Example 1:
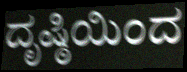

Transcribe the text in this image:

ದೃಷ್ಠಿಯಿಂದ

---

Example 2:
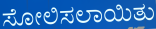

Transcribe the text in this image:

ಸೋಲಿಸಲಾಯಿತು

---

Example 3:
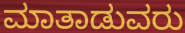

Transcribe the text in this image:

ಮಾತಾಡುವರು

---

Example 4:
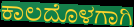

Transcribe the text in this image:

ಕಾಲದೊಳಗಾಗಿ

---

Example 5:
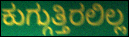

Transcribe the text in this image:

ಕುಗ್ಗುತ್ತಿರಲಿಲ್ಲ